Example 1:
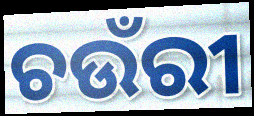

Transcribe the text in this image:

ଚଉଁରୀ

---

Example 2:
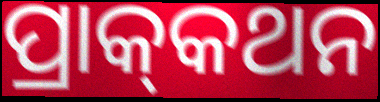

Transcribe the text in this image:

ପ୍ରାକ୍‌କଥନ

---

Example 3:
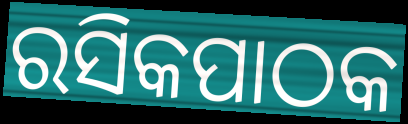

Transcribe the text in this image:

ରସିକପାଠକ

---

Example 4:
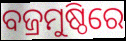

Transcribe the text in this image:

ବଜ୍ରମୁଷ୍ଠିରେ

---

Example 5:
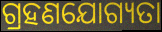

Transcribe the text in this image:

ଗ୍ରହଣଯୋଗ୍ୟତା